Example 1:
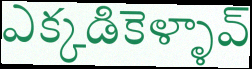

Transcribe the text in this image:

ఎక్కడికెళ్ళావ్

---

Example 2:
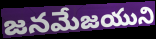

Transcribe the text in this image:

జనమేజయుని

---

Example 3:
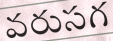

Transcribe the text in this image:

వరుసగ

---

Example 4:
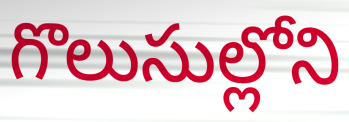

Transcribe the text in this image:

గొలుసుల్లోని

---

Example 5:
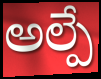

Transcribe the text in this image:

అల్పే